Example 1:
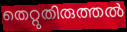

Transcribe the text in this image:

തെറ്റുതിരുത്തൽ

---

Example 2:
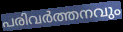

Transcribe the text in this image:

പരിവർത്തനവും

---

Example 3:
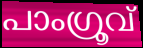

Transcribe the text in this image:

പാംഗ്രൂവ്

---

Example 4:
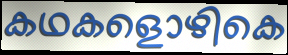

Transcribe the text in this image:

കഥകളൊഴികെ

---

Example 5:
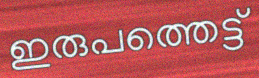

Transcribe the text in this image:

ഇരുപത്തെട്ട്